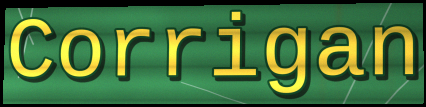
Corrigan